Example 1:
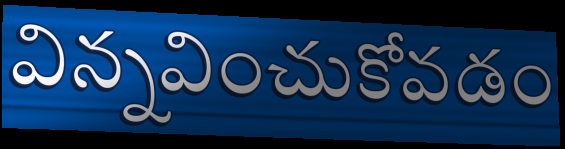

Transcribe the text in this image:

విన్నవించుకోవడం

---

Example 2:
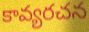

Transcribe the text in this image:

కావ్యరచన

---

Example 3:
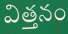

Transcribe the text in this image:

విత్తనం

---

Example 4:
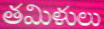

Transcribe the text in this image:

తమిళులు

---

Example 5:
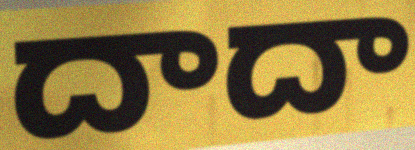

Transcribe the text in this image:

దాదా